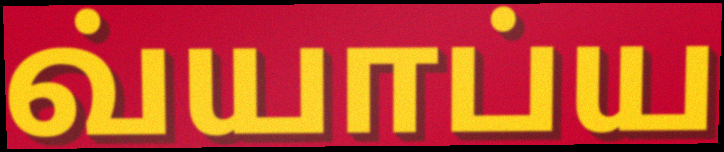
வ்யாப்ய